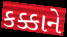
કક્કાને